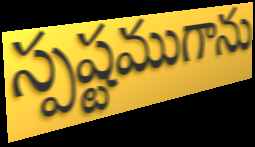
స్పష్టముగాను